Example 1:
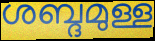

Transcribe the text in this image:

ശബ്ദമുള്ള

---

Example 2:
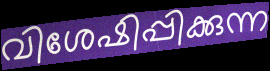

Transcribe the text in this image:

വിശേഷിപ്പിക്കുന്ന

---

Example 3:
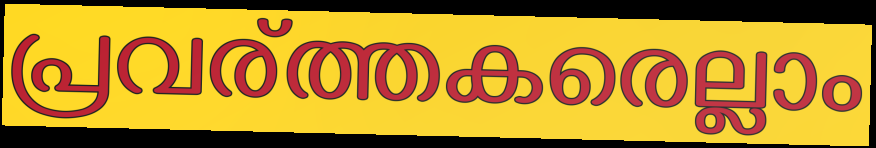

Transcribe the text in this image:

പ്രവര്ത്തകരെല്ലാം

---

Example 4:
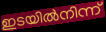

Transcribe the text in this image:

ഇടയിൽനിന്ന്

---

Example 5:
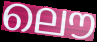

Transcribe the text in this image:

ലൌ